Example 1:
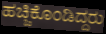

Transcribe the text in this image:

ಹಚ್ಚಿಕೊಂಡಿದ್ದರು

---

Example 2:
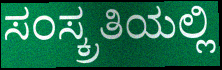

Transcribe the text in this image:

ಸಂಸ್ಕ್ರತಿಯಲ್ಲಿ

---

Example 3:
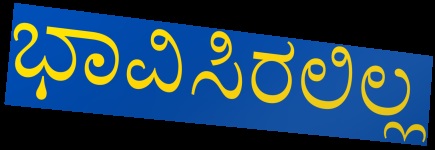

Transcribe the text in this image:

ಭಾವಿಸಿರಲಿಲ್ಲ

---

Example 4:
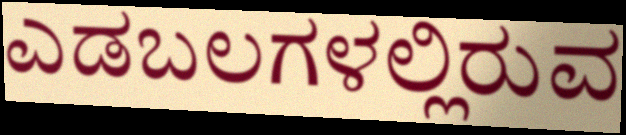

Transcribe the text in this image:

ಎಡಬಲಗಳಲ್ಲಿರುವ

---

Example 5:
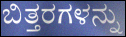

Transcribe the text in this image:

ಬಿತ್ತರಗಳನ್ನು